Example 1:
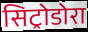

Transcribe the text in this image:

सिट्रोडोरा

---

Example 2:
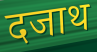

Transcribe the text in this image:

दजाथ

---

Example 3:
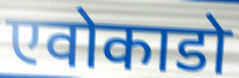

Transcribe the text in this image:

एवोकाडो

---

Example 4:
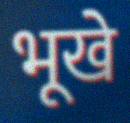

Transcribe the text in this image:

भूखे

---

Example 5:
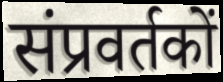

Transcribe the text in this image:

संप्रवर्तकों